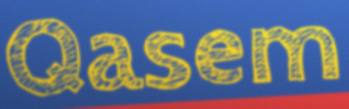
Qasem